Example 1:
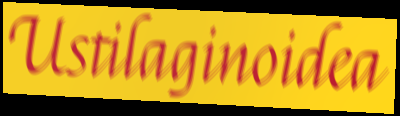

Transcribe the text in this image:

Ustilaginoidea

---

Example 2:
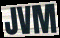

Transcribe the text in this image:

JVM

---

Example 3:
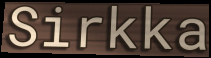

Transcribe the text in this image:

Sirkka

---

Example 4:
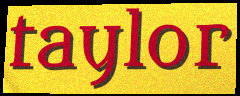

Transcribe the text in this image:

taylor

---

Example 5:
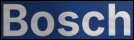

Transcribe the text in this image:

Bosch